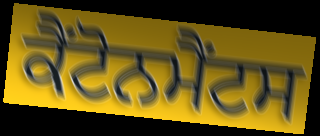
ਕੈਂਟੋਨਮੈਂਟਸ